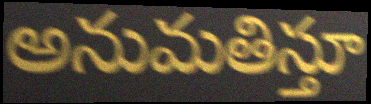
అనుమతిస్తూ